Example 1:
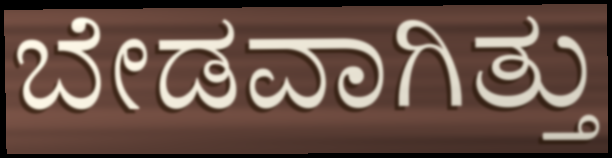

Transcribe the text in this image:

ಬೇಡವಾಗಿತ್ತು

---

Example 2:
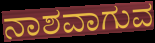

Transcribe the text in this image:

ನಾಶವಾಗುವ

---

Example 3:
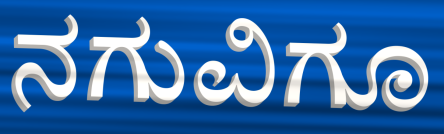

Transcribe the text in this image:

ನಗುವಿಗೂ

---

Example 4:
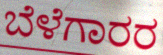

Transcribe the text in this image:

ಬೆಳೆಗಾರರ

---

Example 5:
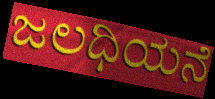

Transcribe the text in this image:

ಜಲಧಿಯನೆ